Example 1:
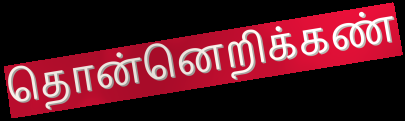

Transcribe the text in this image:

தொன்னெறிக்கண்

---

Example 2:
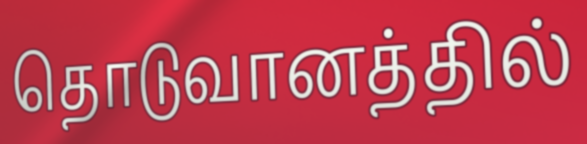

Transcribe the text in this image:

தொடுவானத்தில்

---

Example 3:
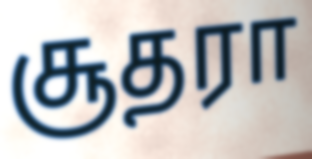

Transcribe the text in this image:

சூதரா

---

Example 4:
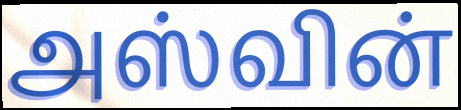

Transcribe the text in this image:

அஸ்வின்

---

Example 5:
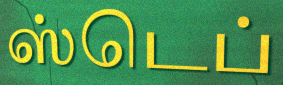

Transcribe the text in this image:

ஸ்டெப்